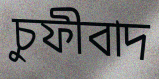
চুফীবাদ